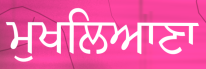
ਮੁਖਲਿਆਣਾ